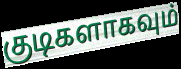
குடிகளாகவும்